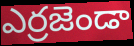
ఎర్రజెండా